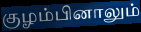
குழம்பினாலும்